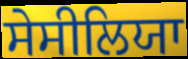
ਸੇਸੀਲਿਯਾ